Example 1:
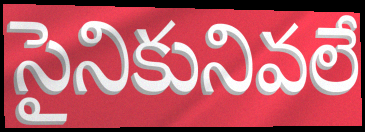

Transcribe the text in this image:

సైనికునివలే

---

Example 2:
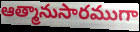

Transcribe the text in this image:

ఆత్మానుసారముగా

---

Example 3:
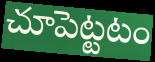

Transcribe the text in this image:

చూపెట్టటం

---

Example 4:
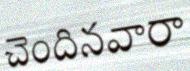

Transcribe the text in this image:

చెందినవారా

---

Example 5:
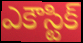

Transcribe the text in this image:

ఎకౌస్టిక్